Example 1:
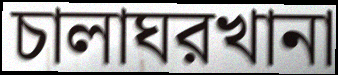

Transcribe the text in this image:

চালাঘরখানা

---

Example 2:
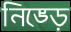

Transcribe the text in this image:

নিঙ্ড়ে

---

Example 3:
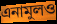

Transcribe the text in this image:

এনামুলও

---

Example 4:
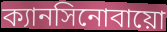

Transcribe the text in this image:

ক্যানসিনোবায়ো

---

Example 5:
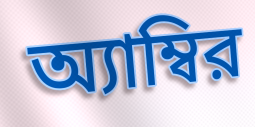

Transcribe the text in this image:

অ্যাম্বির